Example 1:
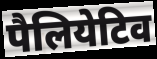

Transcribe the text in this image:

पैलियेटिव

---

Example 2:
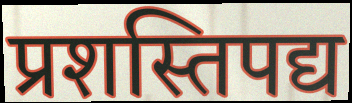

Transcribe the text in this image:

प्रशस्तिपद्य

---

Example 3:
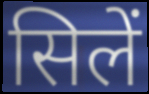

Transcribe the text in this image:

सिलें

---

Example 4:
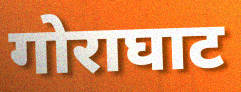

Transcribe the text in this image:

गोराघाट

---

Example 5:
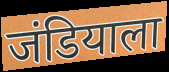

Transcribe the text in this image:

जंडियाला